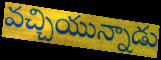
వచ్చియున్నాడు